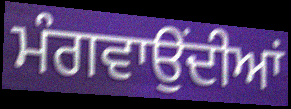
ਮੰਗਵਾਉਂਦੀਆਂ